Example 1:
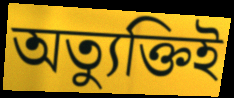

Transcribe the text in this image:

অত্যুক্তিই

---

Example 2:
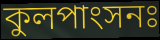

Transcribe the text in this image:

কুলপাংসনঃ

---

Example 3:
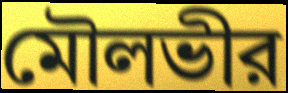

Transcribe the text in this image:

মৌলভীর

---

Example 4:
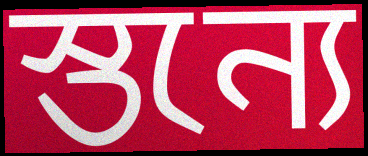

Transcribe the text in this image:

স্তন্যে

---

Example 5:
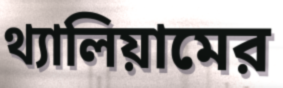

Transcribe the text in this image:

থ্যালিয়ামের